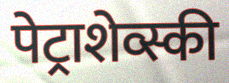
पेट्राशेव्स्की